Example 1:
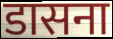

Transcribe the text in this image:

डासना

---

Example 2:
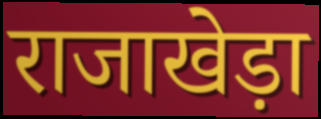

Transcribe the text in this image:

राजाखेड़ा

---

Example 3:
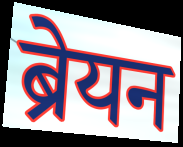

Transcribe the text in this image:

ब्रेयन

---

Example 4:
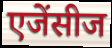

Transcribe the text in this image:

एजेंसीज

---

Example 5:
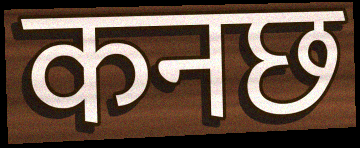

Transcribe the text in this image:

कनछ